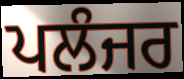
ਪਲੰਜਰ